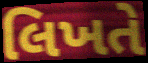
લિખતે